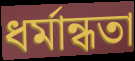
ধর্মান্ধতা